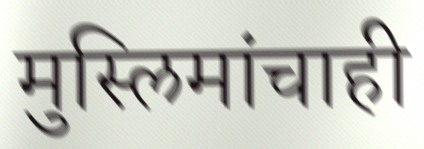
मुस्लिमांचाही